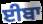
ਈਬਾ